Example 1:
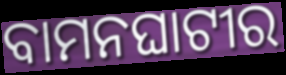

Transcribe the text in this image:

ବାମନଘାଟୀର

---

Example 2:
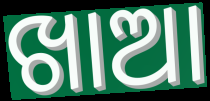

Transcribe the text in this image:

ଖାଆ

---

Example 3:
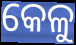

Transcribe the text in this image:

କେଳୁ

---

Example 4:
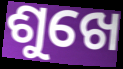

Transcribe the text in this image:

ଶୁଖେ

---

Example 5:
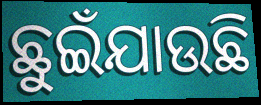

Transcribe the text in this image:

ଛୁଇଁଯାଉଛି